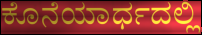
ಕೊನೆಯಾರ್ಧದಲ್ಲಿ